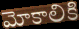
మోకాలికి